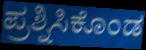
ಪ್ರಶ್ನಿಸಿಕೊಂಡ